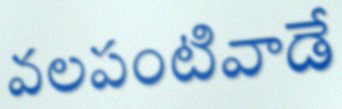
వలపంటివాడే